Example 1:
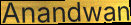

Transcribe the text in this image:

Anandwan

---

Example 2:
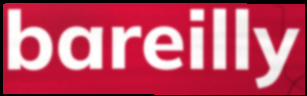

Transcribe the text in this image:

bareilly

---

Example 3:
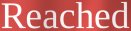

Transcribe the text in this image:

Reached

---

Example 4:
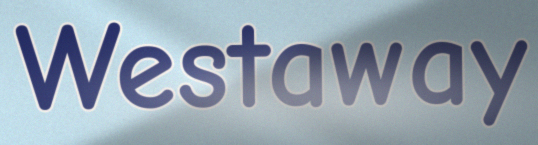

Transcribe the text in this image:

Westaway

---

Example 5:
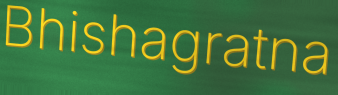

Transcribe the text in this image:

Bhishagratna